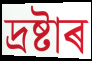
দ্ৰষ্টাৰ